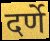
दर्णे